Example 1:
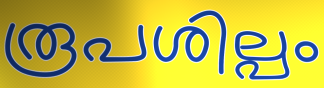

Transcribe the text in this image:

രൂപശില്പം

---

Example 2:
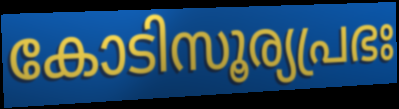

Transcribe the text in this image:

കോടിസൂര്യപ്രഭഃ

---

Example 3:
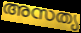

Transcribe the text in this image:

അസത്യ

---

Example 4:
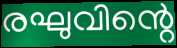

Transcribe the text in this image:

രഘുവിന്റെ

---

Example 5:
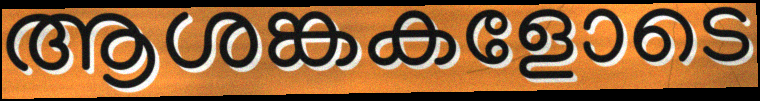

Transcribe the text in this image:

ആശങ്കകളോടെ